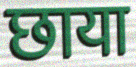
छाया